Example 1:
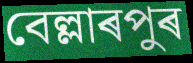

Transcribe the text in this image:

বেল্লাৰপুৰ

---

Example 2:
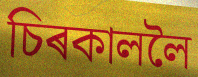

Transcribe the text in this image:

চিৰকাললৈ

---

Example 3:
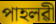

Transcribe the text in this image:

পাহলৱী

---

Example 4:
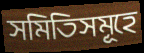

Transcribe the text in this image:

সমিতিসমূহে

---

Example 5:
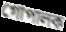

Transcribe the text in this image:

গোপালক